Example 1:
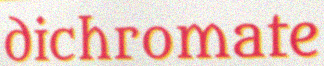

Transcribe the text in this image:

dichromate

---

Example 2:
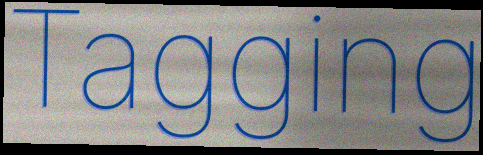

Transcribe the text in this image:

Tagging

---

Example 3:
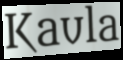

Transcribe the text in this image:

Kaula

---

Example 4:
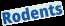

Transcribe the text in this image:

Rodents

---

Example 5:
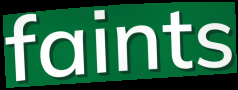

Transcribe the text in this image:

faints